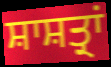
ਸ਼ਾਸ਼ਤ੍ਰਾਂ